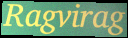
Ragvirag